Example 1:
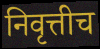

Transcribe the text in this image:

निवृत्तीच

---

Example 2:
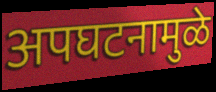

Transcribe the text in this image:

अपघटनामुळे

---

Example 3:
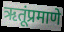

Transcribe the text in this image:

ऋतूंप्रमाणे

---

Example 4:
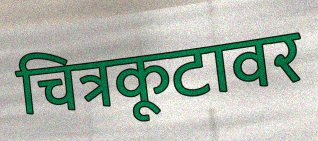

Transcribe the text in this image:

चित्रकूटावर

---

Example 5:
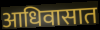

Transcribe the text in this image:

आधिवासात